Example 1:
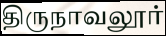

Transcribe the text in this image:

திருநாவலூர்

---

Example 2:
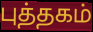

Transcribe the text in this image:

புத்தகம்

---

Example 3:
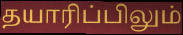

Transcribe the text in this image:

தயாரிப்பிலும்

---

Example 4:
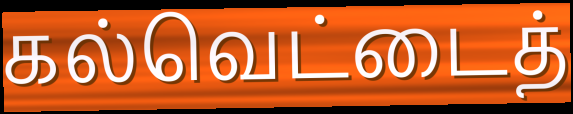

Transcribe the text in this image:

கல்வெட்டைத்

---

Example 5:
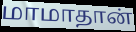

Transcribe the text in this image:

மாமாதான்